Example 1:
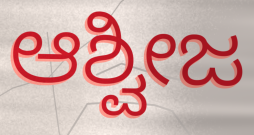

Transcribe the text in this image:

ಆಶ್ವೀಜ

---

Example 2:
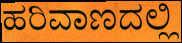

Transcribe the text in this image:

ಹರಿವಾಣದಲ್ಲಿ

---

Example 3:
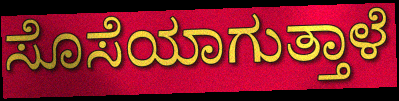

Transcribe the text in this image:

ಸೊಸೆಯಾಗುತ್ತಾಳೆ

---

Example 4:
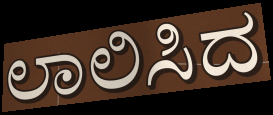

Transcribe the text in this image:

ಲಾಲಿಸಿದ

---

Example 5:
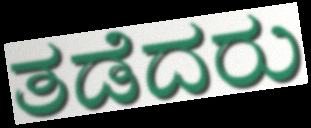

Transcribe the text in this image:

ತಡೆದರು